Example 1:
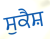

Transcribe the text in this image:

ਸੁਕੈਸ਼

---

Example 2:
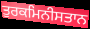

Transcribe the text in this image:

ਤੁਰਕਮਿਨੀਸਤਾਨ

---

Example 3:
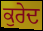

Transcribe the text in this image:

ਕੁਰੇਦ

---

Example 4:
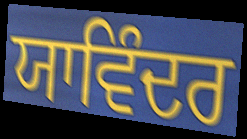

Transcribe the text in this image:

ਯਾਵਿੰਦਰ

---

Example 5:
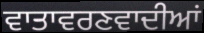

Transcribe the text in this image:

ਵਾਤਾਵਰਣਵਾਦੀਆਂ